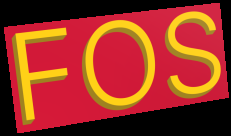
FOS